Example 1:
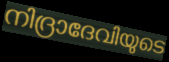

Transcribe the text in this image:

നിദ്രാദേവിയുടെ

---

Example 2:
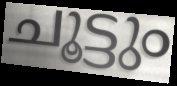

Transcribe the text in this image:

ചൂട്ടും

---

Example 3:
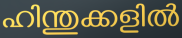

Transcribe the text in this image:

ഹിന്തുക്കളിൽ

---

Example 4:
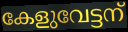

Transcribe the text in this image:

കേളുവേട്ടന്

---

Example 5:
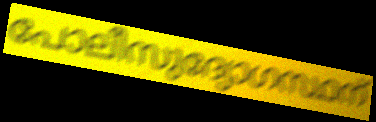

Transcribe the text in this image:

പോലീസുദ്യോഗസ്ഥന്